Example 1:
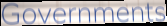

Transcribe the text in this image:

Governments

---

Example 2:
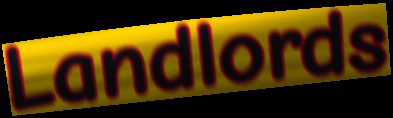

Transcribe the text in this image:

Landlords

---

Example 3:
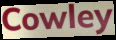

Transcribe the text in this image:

Cowley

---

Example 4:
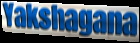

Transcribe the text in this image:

Yakshagana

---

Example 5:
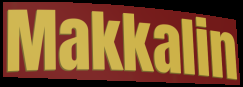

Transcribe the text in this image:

Makkalin